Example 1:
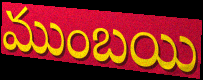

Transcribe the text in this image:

ముంబయి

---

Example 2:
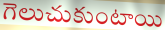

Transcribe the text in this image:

గెలుచుకుంటాయి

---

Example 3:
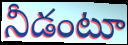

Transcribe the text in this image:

నీడంటూ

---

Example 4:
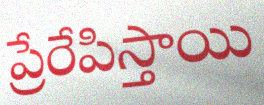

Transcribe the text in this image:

ప్రేరేపిస్తాయి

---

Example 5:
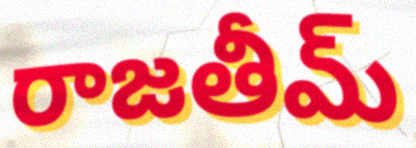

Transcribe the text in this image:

రాజతీమ్